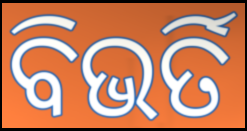
ବିଭର୍ତି